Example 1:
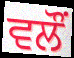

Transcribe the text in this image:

ਵਲੌਂ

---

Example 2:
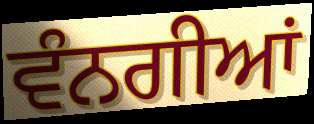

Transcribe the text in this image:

ਵੰਨਗੀਆਂ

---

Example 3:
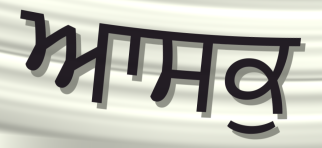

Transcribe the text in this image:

ਆਸਕੁ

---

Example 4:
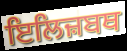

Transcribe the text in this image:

ਇਲਿਜ਼ਬਥ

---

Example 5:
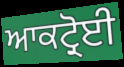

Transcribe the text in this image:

ਆਕਟ੍ਰੋਈ